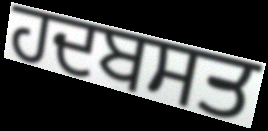
ਹਦਬਸਤ